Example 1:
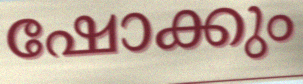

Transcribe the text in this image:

ഷോക്കും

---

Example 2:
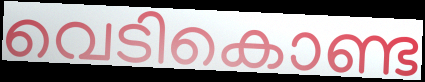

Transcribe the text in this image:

വെടികൊണ്ട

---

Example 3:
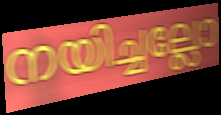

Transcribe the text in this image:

നയിച്ചല്ലോ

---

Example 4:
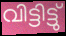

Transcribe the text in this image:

വിട്ടിട്ടു്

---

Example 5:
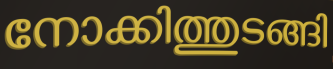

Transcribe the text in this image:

നോക്കിത്തുടങ്ങി